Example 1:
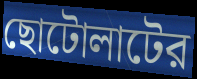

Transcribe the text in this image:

ছোটোলাটের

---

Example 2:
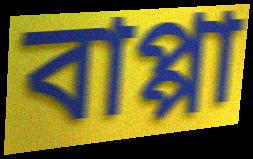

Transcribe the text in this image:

বাপ্পা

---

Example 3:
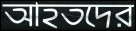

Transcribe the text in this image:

আহতদের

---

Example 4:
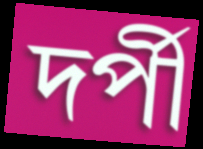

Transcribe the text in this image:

দর্পী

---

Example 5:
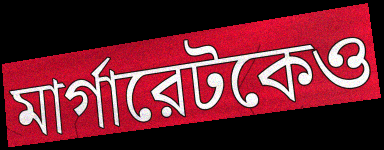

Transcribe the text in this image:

মার্গারেটকেও